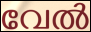
വേൽ